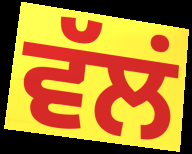
ਵੱਲਂ